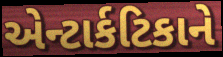
એન્ટાર્કટિકાને